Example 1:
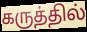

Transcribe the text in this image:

கருத்தில்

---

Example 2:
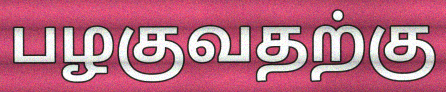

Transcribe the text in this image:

பழகுவதற்கு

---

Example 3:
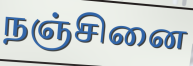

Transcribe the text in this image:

நஞ்சினை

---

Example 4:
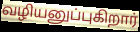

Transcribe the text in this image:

வழியனுப்புகிறார்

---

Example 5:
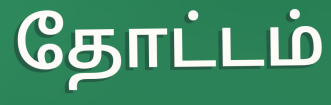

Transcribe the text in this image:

தோட்டம்